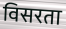
विसरता